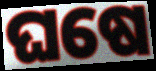
ଘଷେ